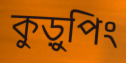
কুড়ুপিং